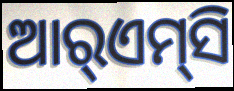
ଆର୍‌ଏମ୍‌ସି